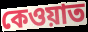
কেওয়াত